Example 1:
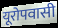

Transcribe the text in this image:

यूरोपवासी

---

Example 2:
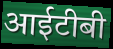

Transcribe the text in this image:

आईटीबी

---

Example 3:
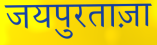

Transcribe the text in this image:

जयपुरताज़ा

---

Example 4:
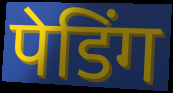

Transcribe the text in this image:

पेडिंग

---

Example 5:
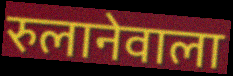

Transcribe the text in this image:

रुलानेवाला